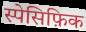
स्पेसिफ़िक